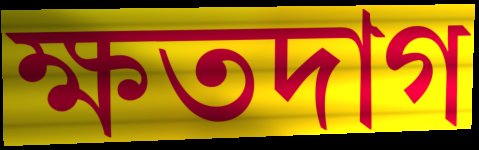
ক্ষতদাগ